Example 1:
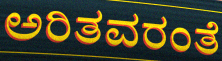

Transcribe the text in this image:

ಅರಿತವರಂತೆ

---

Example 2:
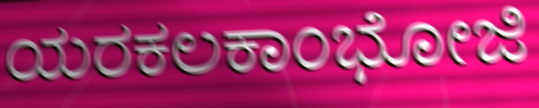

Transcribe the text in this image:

ಯರಕಲಕಾಂಭೋಜಿ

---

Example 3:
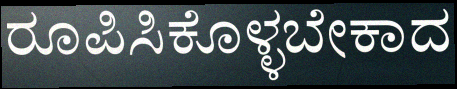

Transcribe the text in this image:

ರೂಪಿಸಿಕೊಳ್ಳಬೇಕಾದ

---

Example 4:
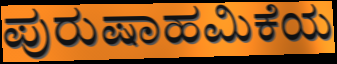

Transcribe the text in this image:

ಪುರುಷಾಹಮಿಕೆಯ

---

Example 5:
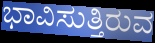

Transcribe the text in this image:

ಭಾವಿಸುತ್ತಿರುವ